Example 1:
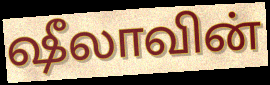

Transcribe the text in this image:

ஷீலாவின்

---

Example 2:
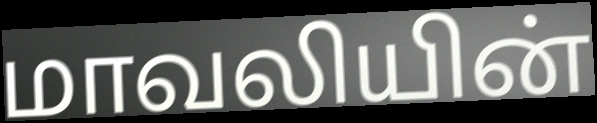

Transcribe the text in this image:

மாவலியின்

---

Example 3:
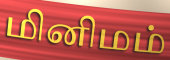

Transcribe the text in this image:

மினிமம்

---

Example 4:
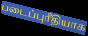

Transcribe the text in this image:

படைப்புரீதியாக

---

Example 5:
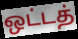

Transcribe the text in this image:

ஒட்டத்